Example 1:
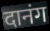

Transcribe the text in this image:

दानंग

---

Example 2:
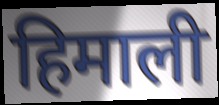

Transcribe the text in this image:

हिमाली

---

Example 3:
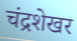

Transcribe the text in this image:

चंद्रशेखर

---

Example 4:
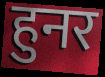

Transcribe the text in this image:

हुनर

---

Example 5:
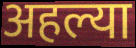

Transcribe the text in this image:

अहल्या